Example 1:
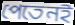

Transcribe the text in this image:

পেতেনই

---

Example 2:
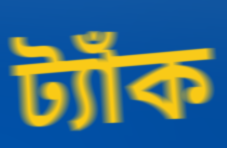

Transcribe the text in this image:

ট্যাঁক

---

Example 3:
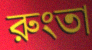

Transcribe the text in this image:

রুংতা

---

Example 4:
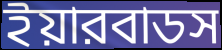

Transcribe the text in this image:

ইয়ারবাডস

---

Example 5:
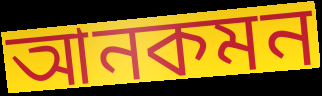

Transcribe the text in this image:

আনকমন